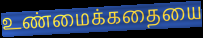
உண்மைக்கதையை